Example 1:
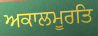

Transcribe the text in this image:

ਅਕਾਲਮੂਰਤਿ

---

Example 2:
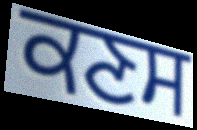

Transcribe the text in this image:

ਕਣਸ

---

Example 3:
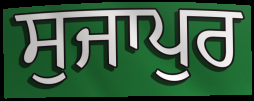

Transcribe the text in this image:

ਸੁਜਾਪੁਰ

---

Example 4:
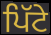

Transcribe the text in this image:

ਪਿੱਟੇ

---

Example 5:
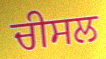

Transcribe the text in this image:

ਚੀਸਲ